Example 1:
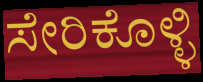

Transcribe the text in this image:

ಸೇರಿಕೊಳ್ಳಿ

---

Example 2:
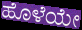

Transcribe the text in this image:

ಹೊಳೆಯೇ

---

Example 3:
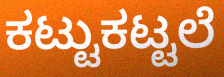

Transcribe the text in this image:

ಕಟ್ಟುಕಟ್ಟಲೆ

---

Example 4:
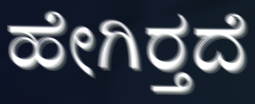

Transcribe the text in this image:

ಹೇಗಿರ್‍ತದೆ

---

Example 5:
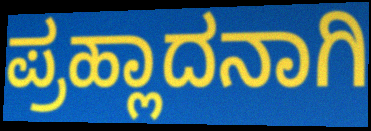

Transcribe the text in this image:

ಪ್ರಹ್ಲಾದನಾಗಿ